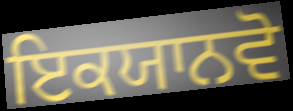
ਇਕਯਾਨਵੋ